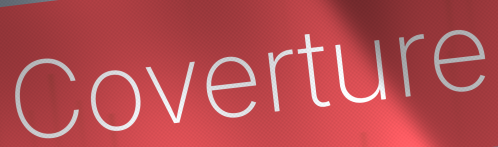
Coverture